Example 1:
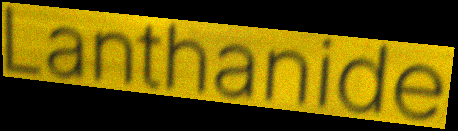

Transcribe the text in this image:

Lanthanide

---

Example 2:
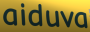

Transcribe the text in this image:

aiduva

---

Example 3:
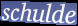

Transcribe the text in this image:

schulde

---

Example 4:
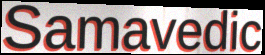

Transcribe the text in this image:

Samavedic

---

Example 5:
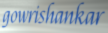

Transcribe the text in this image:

gowrishankar